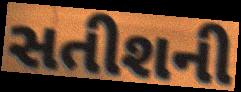
સતીશની